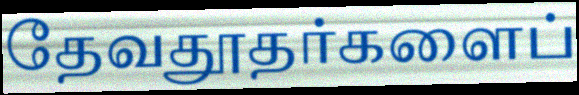
தேவதூதர்களைப்